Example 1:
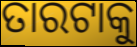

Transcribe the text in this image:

ତାରଟାକୁ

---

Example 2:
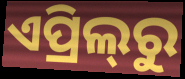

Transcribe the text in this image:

ଏପ୍ରିଲ୍‍ରୁ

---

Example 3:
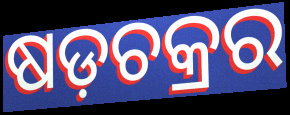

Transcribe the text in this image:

ଷଡ଼ଚକ୍ରର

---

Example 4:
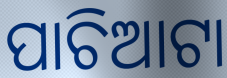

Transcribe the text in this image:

ପାଚିଆଟା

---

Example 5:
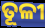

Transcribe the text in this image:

ତୂଳୀ